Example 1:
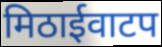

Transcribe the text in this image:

मिठाईवाटप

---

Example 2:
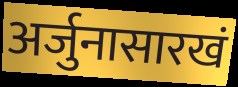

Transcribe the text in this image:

अर्जुनासारखं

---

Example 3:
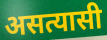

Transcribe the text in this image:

असत्यासी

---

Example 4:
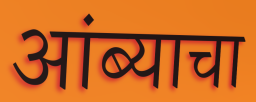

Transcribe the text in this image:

आंब्याचा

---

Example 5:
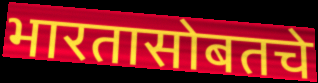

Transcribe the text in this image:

भारतासोबतचे